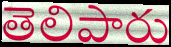
తెలిపారు